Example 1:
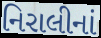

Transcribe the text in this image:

નિરાલીનાં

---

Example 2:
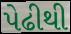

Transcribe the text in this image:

પેઢીથી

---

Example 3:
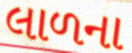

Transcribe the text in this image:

લાળના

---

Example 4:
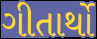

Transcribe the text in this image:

ગીતાર્થો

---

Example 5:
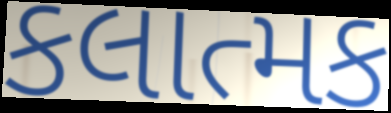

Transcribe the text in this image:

કલાત્મક